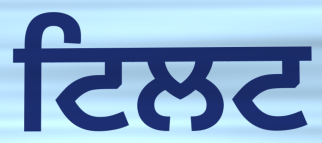
ਟਿਲਟ